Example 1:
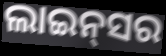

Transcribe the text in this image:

ଲାଇନ୍‍ସର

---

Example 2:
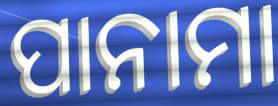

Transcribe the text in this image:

ପାନାମା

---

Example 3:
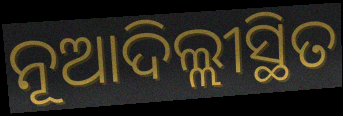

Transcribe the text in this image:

ନୂଆଦିଲ୍ଲୀସ୍ଥିତ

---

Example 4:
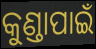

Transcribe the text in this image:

କୁଣ୍ଡାପାଇଁ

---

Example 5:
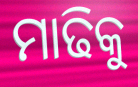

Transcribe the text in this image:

ମାଢିକୁ